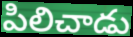
పిలిచాడు